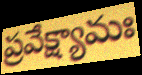
ప్రవేక్ష్యామః